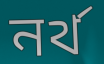
নৰ্থ